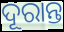
ଦୂରାନ୍ତ